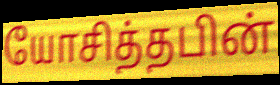
யோசித்தபின்